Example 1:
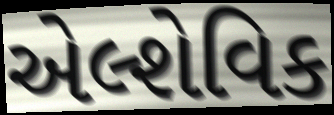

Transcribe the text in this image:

એલ્શેવિક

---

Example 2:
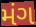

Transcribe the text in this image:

મંગ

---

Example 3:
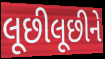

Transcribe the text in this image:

લૂછીલૂછીને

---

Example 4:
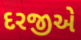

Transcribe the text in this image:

દરજીએ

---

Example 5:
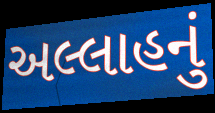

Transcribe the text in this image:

અલ્લાહનું